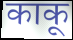
काकू